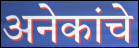
अनेकांचे